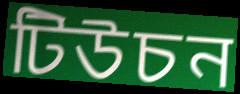
টিউচন